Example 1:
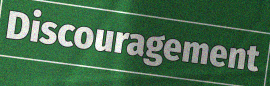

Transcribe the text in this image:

Discouragement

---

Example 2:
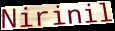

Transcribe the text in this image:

Nirinil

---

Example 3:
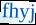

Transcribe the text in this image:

fhyj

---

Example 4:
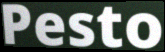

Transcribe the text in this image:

Pesto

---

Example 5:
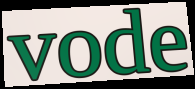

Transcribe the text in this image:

vode